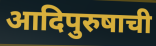
आदिपुरुषाची